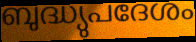
ബുദ്ധ്യുപദേശം